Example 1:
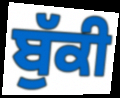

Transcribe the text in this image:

ਬੁੱਕੀ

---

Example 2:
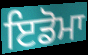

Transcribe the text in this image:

ਇਡੋਮਾ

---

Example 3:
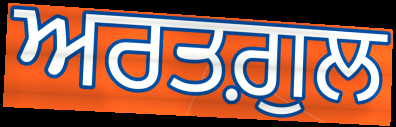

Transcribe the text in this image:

ਅਰਤਗ਼ੁਲ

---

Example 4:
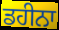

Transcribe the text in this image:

ਡਹੀਨਾ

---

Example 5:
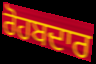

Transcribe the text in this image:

ਰੋਹਬਦਾਰ